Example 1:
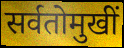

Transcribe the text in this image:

सर्वतोमुखीं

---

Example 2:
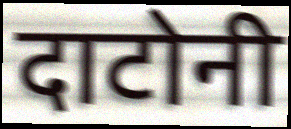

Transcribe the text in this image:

दाटोनी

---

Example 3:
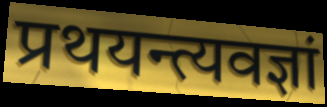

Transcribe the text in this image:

प्रथयन्त्यवज्ञां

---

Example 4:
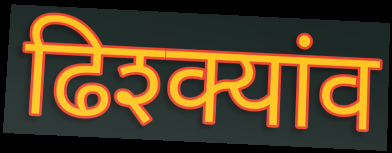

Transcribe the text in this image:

ढिश्क्यांव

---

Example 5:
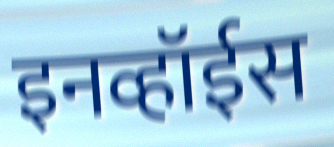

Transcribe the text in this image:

इनव्हॉईस